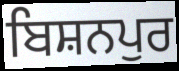
ਬਿਸ਼ਨਪੁਰ